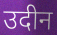
उदीन